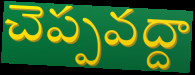
చెప్పవద్దా